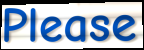
Please